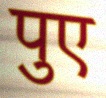
पुए